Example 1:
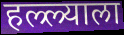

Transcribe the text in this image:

हल्ल्याला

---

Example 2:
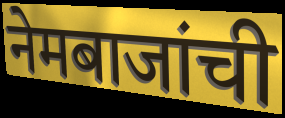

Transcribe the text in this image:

नेमबाजांची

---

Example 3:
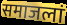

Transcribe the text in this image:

समाजलां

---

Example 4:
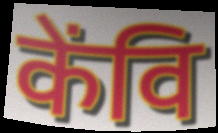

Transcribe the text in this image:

केंवि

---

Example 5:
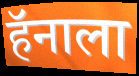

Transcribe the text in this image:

हॅनाला